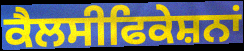
ਕੈਲਸੀਫਿਕੇਸ਼ਨਾਂ